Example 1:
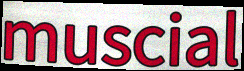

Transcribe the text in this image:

muscial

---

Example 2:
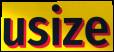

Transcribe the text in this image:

usize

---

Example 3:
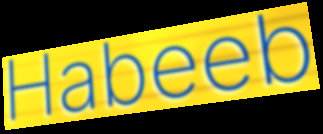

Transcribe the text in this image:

Habeeb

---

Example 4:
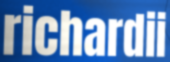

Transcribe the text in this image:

richardii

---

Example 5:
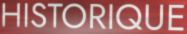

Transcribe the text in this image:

HISTORIQUE